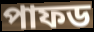
পাফড